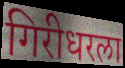
गिरीधरला